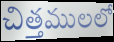
చిత్తములలో